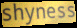
shyness